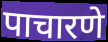
पाचारणे